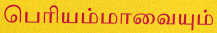
பெரியம்மாவையும்